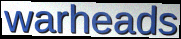
warheads